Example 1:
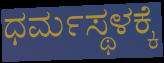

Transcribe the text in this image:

ಧರ್ಮಸ್ಥಳಕ್ಕೆ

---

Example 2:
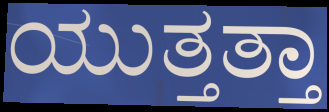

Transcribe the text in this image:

ಯುತ್ತತ್ತಾ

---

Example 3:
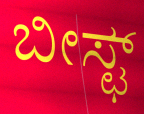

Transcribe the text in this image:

ಬೀಸ್ಟ್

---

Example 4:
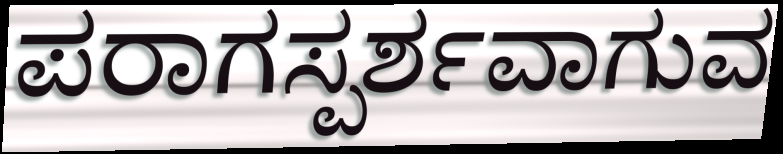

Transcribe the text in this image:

ಪರಾಗಸ್ಪರ್ಶವಾಗುವ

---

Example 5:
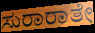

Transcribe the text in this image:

ಸುರಾರಾತೇ